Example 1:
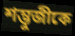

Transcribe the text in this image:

শম্ভুজীকে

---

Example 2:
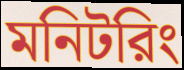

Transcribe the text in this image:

মনিটরিং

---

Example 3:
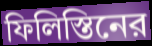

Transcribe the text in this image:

ফিলিস্তিনের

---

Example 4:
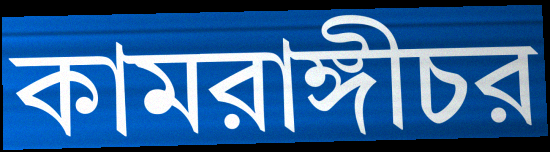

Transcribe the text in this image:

কামরাঙ্গীচর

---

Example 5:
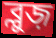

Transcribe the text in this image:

ব্লুজ়